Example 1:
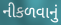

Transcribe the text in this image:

નીકળવાનું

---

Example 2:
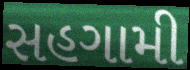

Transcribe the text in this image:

સહગામી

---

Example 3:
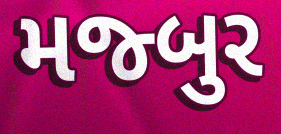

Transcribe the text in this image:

મજ્બુર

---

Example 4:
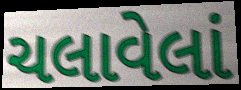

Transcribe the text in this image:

ચલાવેલાં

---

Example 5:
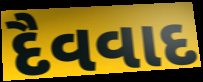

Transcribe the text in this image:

દૈવવાદ